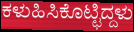
ಕಳುಹಿಸಿಕೊಟ್ಟಿದ್ದಳು